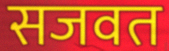
सजवत